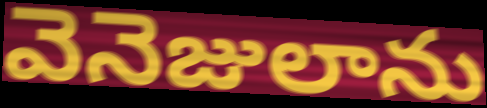
వెనెజులాను